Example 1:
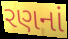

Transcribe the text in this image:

રણનાં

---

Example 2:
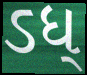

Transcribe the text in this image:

ઽધ્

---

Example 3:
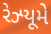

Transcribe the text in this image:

રેઝ્યૂમે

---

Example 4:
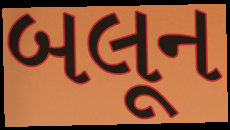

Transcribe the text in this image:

બલૂન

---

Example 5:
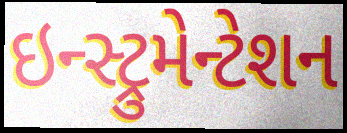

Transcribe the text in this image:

ઇન્સ્ટ્રુમેન્ટેશન